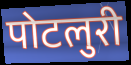
पोटलुरी